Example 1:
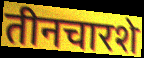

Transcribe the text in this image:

तीनचारशे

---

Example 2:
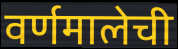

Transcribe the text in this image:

वर्णमालेची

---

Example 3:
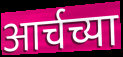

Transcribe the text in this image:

आर्चच्या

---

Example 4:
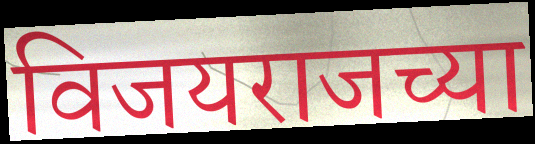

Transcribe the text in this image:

विजयराजच्या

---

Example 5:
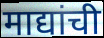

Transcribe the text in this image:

माद्यांची